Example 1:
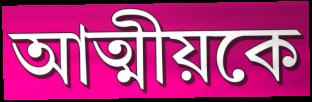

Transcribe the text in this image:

আত্মীয়কে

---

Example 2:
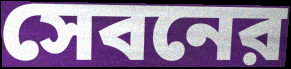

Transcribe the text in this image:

সেবনের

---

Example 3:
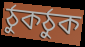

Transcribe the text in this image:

ঠুকঠুক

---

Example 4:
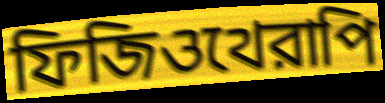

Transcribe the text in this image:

ফিজিওথেরাপি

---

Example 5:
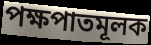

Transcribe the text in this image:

পক্ষপাতমূলক